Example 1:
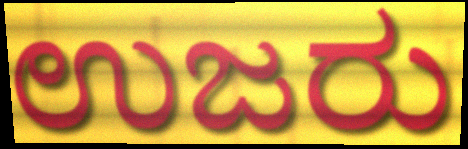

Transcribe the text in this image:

ಉಜರು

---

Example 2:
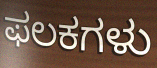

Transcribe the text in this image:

ಫಲಕಗಳು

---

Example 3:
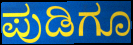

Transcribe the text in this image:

ಪುಡಿಗೂ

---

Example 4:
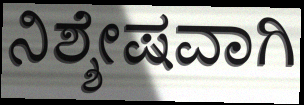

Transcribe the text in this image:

ನಿಶ್ಶೇಷವಾಗಿ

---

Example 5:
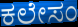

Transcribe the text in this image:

ಕಲೇಸಂ